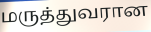
மருத்துவரான